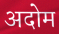
अदोम